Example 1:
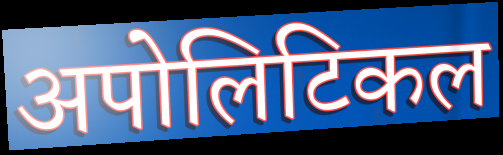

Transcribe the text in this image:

अपोलिटिकल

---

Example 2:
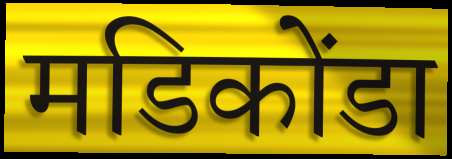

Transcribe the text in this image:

मडिकोंडा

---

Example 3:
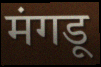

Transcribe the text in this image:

मंगडू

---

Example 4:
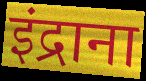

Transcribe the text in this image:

इंद्राना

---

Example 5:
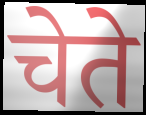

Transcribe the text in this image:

चेते